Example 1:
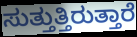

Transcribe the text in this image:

ಸುತ್ತುತ್ತಿರುತ್ತಾರೆ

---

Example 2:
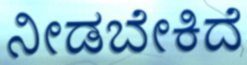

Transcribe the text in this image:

ನೀಡಬೇಕಿದೆ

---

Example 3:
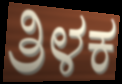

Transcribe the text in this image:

ತಿಳಕ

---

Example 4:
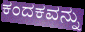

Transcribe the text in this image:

ಕಂದಕವನ್ನು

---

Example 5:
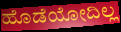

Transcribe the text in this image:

ಹೊಡೆಯೋದಿಲ್ಲ